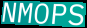
NMOPS